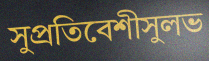
সুপ্রতিবেশীসুলভ